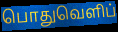
பொதுவெளிப்